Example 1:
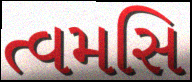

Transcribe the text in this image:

ત્વમસિ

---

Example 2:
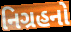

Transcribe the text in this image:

નિગ્રહનો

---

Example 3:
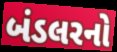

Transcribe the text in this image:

બંડલરનો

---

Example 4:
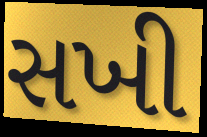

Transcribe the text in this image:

સખી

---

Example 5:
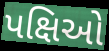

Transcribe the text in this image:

પક્ષિઓ